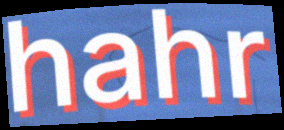
hahr